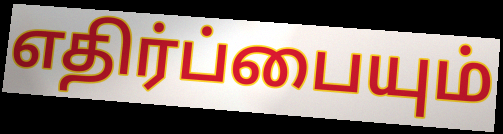
எதிர்ப்பையும்